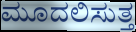
ಮೂದಲಿಸುತ್ತ